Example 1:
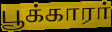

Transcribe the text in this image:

பூக்காரர்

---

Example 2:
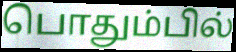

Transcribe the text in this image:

பொதும்பில்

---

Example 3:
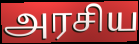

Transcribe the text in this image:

அரசிய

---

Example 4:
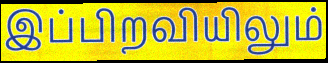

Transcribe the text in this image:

இப்பிறவியிலும்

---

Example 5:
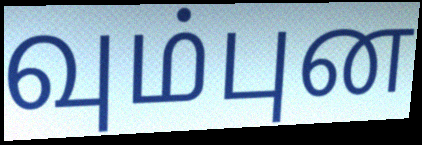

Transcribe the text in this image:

வும்புன